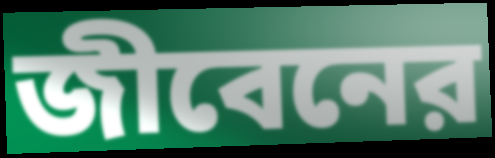
জীবেনের